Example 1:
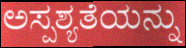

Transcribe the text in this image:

ಅಸ್ಪಶ್ಯತೆಯನ್ನು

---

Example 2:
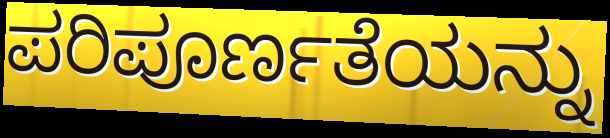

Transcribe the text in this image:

ಪರಿಪೂರ್ಣತೆಯನ್ನು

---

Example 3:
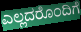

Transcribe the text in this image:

ಎಲ್ಲದರೊಂದಿಗೆ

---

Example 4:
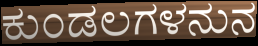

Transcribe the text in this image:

ಕುಂಡಲಗಳನುನ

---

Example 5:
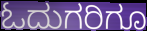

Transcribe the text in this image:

ಓದುಗರಿಗೂ